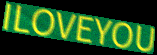
ILOVEYOU